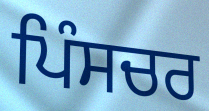
ਪਿੰਸਚਰ